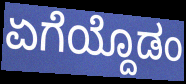
ಏಗೆಯ್ದೊಡಂ